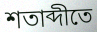
শতাব্দীতে